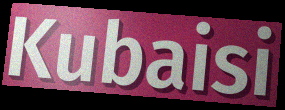
Kubaisi